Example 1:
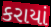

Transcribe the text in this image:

કરાયાં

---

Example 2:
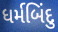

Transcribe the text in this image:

ધર્મબિંદુ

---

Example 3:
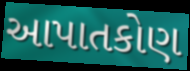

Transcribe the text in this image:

આપાતકોણ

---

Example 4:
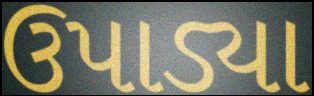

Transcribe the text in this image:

ઉપાડ્યા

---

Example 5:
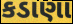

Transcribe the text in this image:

કડાણા